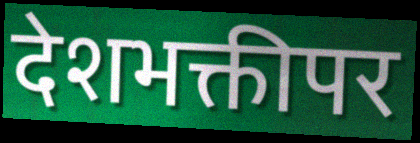
देशभक्तीपर